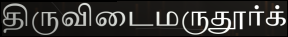
திருவிடைமருதூர்க்